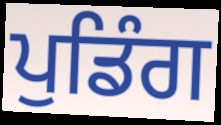
ਪੁਡਿੰਗ